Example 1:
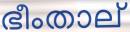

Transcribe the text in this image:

ഭീംതാല്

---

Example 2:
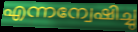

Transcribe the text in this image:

എന്നന്വേഷിച്ചു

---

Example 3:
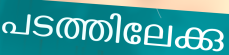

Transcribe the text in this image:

പടത്തിലേക്കു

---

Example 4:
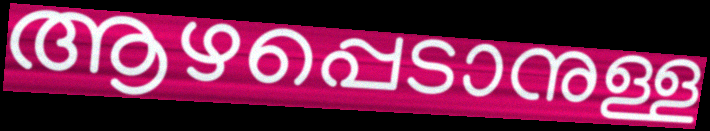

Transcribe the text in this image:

ആഴപ്പെടാനുള്ള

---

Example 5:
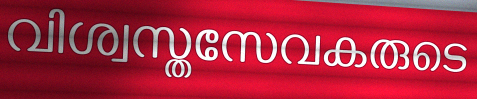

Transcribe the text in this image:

വിശ്വസ്തസേവകരുടെ